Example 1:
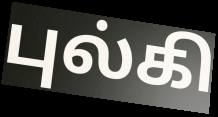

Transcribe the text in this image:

புல்கி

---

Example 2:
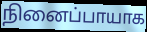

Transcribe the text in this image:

நினைப்பாயாக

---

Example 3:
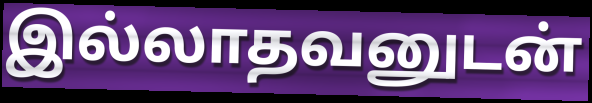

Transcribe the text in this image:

இல்லாதவனுடன்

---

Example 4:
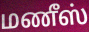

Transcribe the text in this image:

மணீஸ்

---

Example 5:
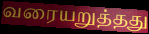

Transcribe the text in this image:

வரையறுத்தது